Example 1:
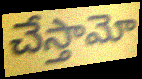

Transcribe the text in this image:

చేస్తామో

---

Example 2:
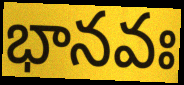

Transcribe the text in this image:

భానవః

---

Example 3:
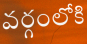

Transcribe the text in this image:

వర్గంలోకి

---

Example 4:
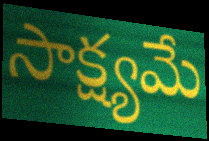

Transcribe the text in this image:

సాక్ష్యమే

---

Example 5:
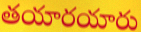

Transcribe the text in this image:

తయారయారు